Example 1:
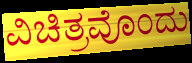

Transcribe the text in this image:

ವಿಚಿತ್ರವೊಂದು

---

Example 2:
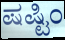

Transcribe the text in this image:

ಷಷ್ಟಿಂ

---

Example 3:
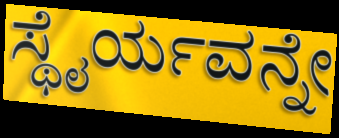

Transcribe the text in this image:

ಸ್ಥೈರ್ಯವನ್ನೇ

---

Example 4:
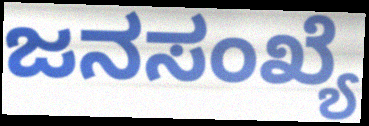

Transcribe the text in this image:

ಜನಸಂಖ್ಯೆ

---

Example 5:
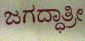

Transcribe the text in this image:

ಜಗದ್ಧಾತ್ರೀ